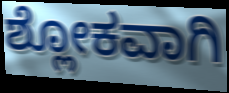
ಶ್ಲೋಕವಾಗಿ